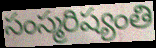
సంస్మరిష్యంతి